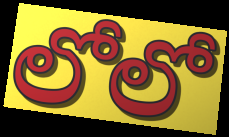
లోలో